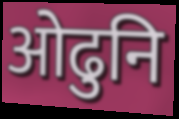
ओढुनि